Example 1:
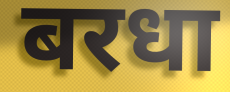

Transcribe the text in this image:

बरधा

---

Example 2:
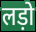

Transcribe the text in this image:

लड़ो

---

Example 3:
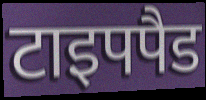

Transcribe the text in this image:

टाइपपैड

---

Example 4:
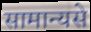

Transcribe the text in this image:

सामान्यसे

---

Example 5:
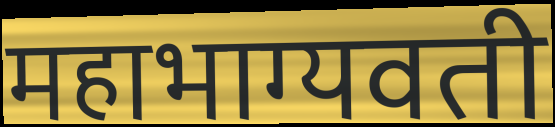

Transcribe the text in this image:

महाभाग्यवती